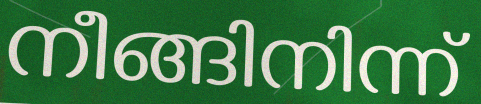
നീങ്ങിനിന്ന്